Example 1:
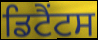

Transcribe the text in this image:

ਡਿਟੈਂਟਸ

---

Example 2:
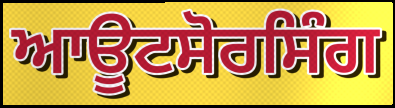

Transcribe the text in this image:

ਆਊਟਸੋਰਸਿੰਗ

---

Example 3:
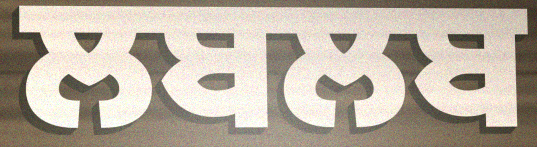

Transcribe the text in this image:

ਲਬਲਬ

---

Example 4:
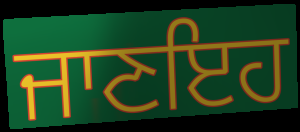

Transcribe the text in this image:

ਜਾਣਇਹ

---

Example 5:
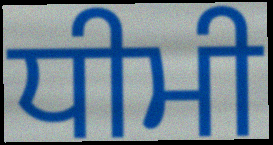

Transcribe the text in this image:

ਧੀਮੀ